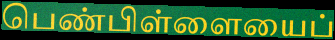
பெண்பிள்ளையைப்